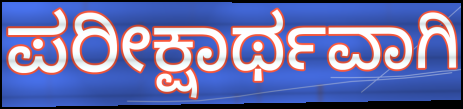
ಪರೀಕ್ಷಾರ್ಥವಾಗಿ